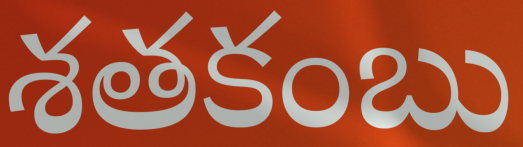
శతకంబు